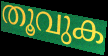
തൂവുക